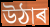
উঠাৰ